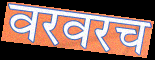
वरवरच